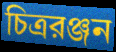
চিত্ররঞ্জন